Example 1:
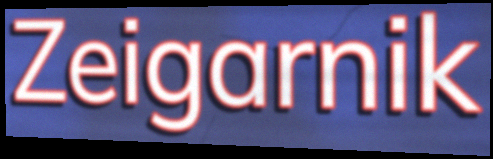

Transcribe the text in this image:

Zeigarnik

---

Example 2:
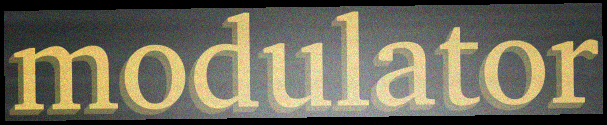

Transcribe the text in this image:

modulator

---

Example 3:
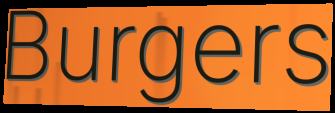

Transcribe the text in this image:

Burgers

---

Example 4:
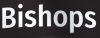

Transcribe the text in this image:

Bishops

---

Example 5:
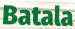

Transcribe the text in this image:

Batala